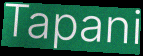
Tapani